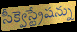
సీక్వెస్ట్రేషన్ను